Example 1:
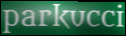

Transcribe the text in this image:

parkucci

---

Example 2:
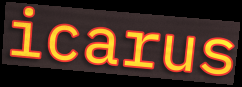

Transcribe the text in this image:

icarus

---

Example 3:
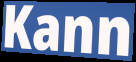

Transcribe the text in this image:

Kann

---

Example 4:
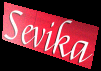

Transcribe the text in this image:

Sevika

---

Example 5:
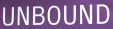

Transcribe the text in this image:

UNBOUND